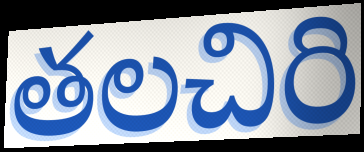
తలచిరి